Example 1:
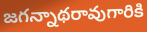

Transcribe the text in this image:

జగన్నాథరావుగారికి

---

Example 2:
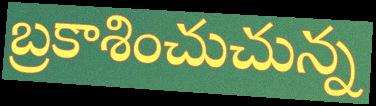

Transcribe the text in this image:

బ్రకాశించుచున్న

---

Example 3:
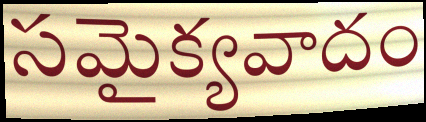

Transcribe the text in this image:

సమైక్యవాదం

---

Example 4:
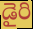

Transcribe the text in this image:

డైరి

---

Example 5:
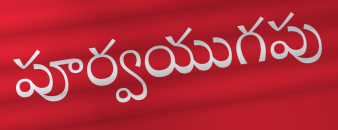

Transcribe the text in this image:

పూర్వయుగపు